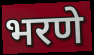
भरणे